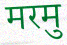
मरमु